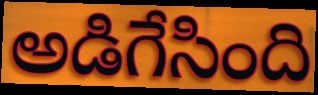
అడిగేసింది